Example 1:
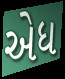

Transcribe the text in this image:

એધ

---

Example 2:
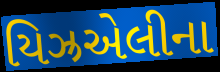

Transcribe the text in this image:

યિઝ્રએલીના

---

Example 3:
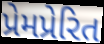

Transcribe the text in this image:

પ્રેમપ્રેરિત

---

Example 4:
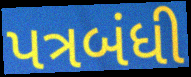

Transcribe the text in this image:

પત્રબંધી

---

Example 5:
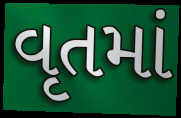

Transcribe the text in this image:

વૃતમાં